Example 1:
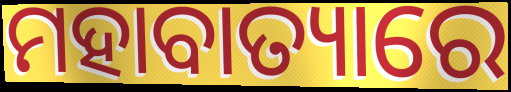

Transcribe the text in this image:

ମହାବାତ୍ୟାରେ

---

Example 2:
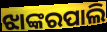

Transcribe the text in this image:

ଝାଙ୍କରପାଲି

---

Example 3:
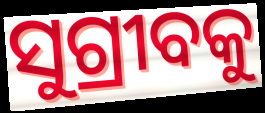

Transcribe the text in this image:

ସୁଗ୍ରୀବକୁ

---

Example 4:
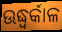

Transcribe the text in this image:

ଊଦ୍ଧ୍ୱର୍କାଳ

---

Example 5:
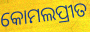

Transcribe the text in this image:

କୋମଲପ୍ରୀତ